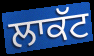
ਲਾਕੱਟ